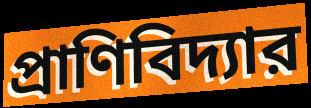
প্রাণিবিদ্যার